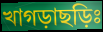
খাগড়াছড়িঃ